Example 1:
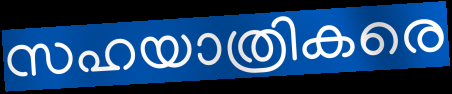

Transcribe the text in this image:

സഹയാത്രികരെ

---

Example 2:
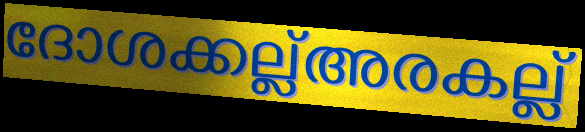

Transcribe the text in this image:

ദോശക്കല്ല്അരകല്ല്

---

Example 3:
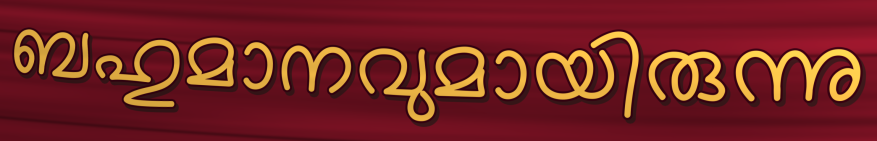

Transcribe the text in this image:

ബഹുമാനവുമായിരുന്നു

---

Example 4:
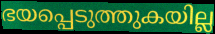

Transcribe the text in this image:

ഭയപ്പെടുത്തുകയില്ല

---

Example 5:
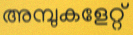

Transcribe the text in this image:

അമ്പുകളേറ്റ്